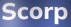
Scorp